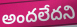
అందలేదని